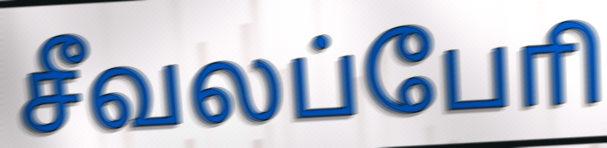
சீவலப்பேரி